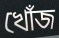
খোঁজ